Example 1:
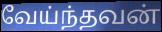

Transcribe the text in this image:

வேய்ந்தவன்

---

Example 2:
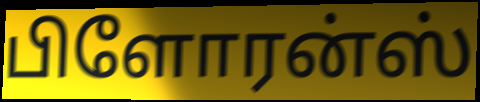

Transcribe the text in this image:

பிளோரன்ஸ்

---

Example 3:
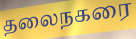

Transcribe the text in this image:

தலைநகரை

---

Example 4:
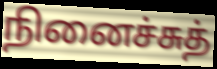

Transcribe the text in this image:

நினைச்சுத்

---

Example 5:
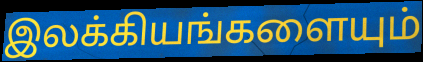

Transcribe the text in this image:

இலக்கியங்களையும்